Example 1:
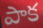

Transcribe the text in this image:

పాక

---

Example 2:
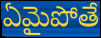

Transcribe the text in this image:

ఏమైపోతే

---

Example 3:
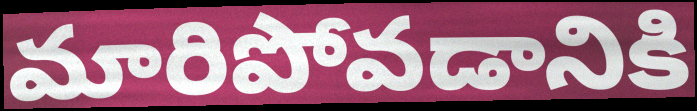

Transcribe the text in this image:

మారిపోవడానికి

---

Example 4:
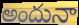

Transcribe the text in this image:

అందునా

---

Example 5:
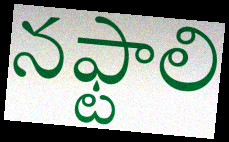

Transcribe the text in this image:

నఫ్టాలి